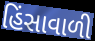
હિંસાવાળી